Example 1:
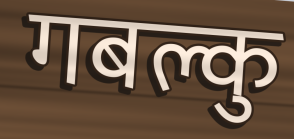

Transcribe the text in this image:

गबल्कु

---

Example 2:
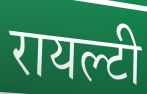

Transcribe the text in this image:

रायल्टी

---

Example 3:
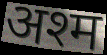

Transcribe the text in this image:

अश्म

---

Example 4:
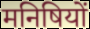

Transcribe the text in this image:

मनिषियों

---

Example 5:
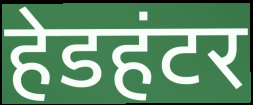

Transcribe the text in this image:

हेडहंटर